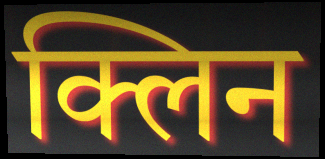
क्लिन